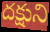
దక్షుని